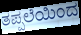
ತಪ್ಪಲೆಯಿಂದ